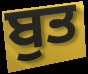
ਬੁਤ